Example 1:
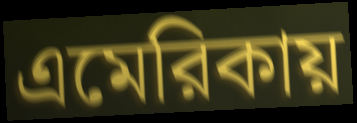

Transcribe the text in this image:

এমেরিকায়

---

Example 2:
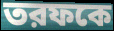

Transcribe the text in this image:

তরফকে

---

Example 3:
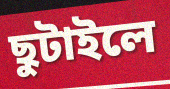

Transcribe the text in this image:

ছুটাইলে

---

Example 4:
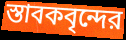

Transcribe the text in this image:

স্তাবকবৃন্দের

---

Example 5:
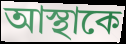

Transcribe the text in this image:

আস্থাকে